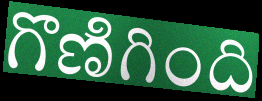
గొణిగింది